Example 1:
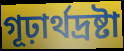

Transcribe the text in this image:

গূঢ়ার্থদ্রষ্টা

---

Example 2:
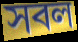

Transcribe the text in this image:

সবল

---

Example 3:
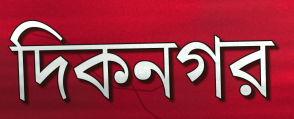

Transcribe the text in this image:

দিকনগর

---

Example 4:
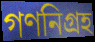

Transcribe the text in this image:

গণনিগ্রহ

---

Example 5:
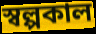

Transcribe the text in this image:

স্বল্পকাল